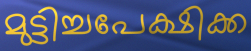
മുട്ടിച്ചപേക്ഷിക്ക